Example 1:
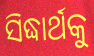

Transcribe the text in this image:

ସିଦ୍ଧାର୍ଥକୁ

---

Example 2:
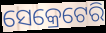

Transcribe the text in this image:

ସେକ୍ରେଟେରି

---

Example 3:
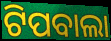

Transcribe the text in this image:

ଟିପବାଲା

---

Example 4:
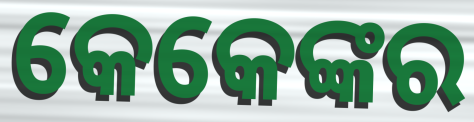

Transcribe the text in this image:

କେକେଙ୍କର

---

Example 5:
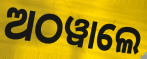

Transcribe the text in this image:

ଅଠୱାଲେ